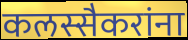
कलस्सैकरांना